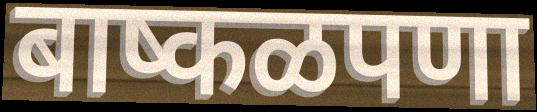
बाष्कळपणा